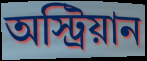
অস্ট্রিয়ান